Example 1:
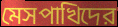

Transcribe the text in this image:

মেসপাখিদের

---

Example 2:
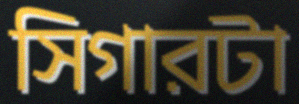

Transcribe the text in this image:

সিগারটা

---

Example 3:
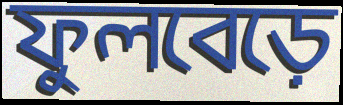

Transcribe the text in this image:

ফুলবেড়ে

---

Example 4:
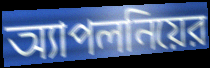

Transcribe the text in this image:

অ্যাপলনিয়ের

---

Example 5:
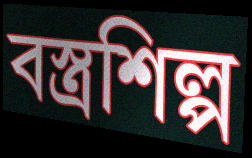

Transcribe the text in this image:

বস্ত্রশিল্প